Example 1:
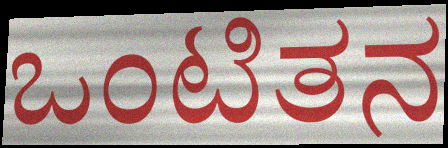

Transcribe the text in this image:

ಒಂಟಿತನ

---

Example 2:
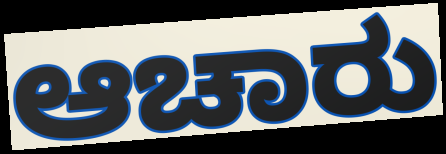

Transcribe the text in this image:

ಆಚಾರು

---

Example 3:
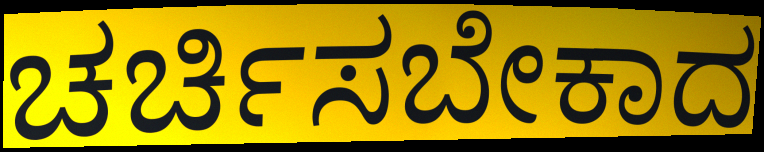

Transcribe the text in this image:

ಚರ್ಚಿಸಬೇಕಾದ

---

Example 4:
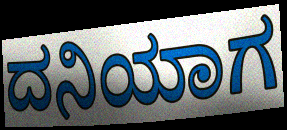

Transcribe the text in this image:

ದನಿಯಾಗ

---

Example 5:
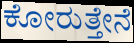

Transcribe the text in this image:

ಕೋರುತ್ತೇನೆ